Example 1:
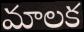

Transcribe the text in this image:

మాలక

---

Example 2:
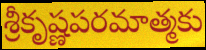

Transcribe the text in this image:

శ్రీకృష్ణపరమాత్మకు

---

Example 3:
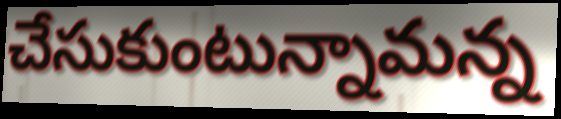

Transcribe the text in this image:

చేసుకుంటున్నామన్న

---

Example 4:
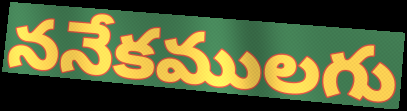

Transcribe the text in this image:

ననేకములగు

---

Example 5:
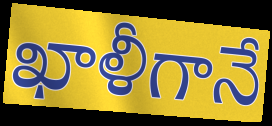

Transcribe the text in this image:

ఖాళీగానే